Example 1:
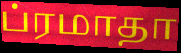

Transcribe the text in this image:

ப்ரமாதா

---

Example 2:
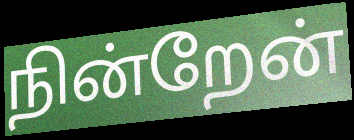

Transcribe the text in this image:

நின்றேன்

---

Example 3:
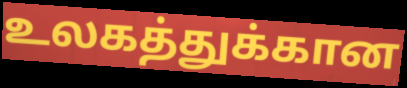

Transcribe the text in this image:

உலகத்துக்கான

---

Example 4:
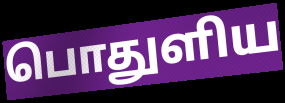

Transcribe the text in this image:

பொதுளிய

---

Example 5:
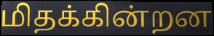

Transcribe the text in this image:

மிதக்கின்றன